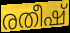
രതീഷ്